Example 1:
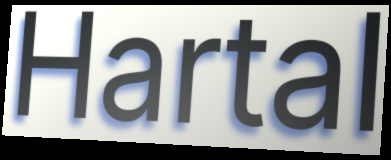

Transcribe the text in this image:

Hartal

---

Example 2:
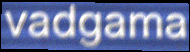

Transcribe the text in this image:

vadgama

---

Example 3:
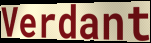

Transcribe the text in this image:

Verdant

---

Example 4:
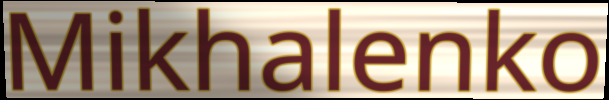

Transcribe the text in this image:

Mikhalenko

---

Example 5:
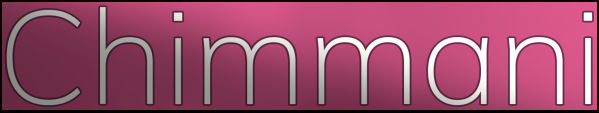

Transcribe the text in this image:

Chimmani